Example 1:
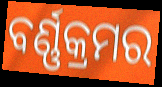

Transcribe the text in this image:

ବର୍ଣ୍ଣକ୍ରମର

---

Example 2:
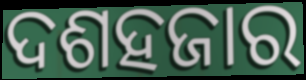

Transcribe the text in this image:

ଦଶହଜାର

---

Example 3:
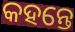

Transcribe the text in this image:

କହନ୍ତେ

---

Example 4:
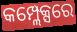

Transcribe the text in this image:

କମ୍ପ୍ଲେକ୍ସରେ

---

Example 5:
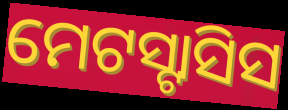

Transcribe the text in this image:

ମେଟସ୍ଟାସିସ